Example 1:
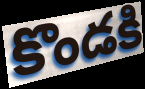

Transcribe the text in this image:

కొండకి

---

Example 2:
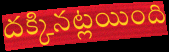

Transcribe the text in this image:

దక్కినట్లయింది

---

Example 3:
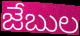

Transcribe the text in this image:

జేబుల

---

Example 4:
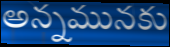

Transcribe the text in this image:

అన్నమునకు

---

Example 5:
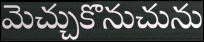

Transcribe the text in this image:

మెచ్చుకొనుచును